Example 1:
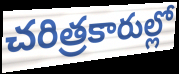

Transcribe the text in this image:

చరిత్రకారుల్లో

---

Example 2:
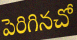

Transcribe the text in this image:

పెరిగినచో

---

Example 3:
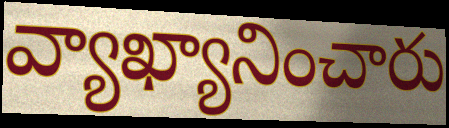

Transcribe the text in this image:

వ్యాఖ్యానించారు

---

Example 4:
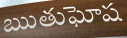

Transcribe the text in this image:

ఋతుఘోష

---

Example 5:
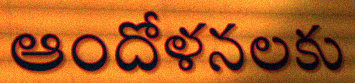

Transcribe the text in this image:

ఆందోళనలకు